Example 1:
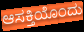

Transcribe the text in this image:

ಆಸಕ್ತಿಯೊಂದು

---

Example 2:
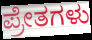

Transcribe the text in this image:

ಪ್ರೇತಗಳು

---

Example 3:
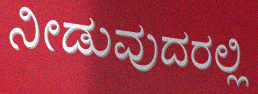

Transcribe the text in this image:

ನೀಡುವುದರಲ್ಲಿ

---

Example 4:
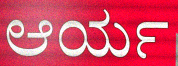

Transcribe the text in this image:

ಆರ್ಯ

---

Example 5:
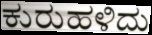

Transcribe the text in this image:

ಕುರುಹಳಿದು